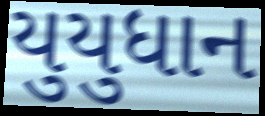
યુયુધાન